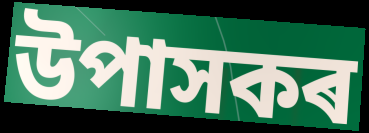
উপাসকৰ